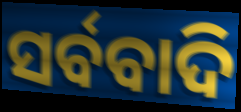
ସର୍ବବାଦି